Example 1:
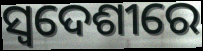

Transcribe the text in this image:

ସ୍ୱଦେଶୀରେ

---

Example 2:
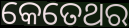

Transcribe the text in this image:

କେତେଥର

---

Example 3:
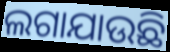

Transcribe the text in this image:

ଲଗାଯାଉଛି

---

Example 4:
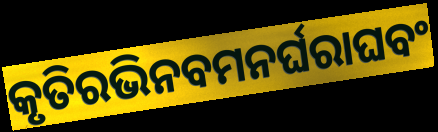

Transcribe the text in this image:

କୃତିରଭିନବମନର୍ଘରାଘବଂ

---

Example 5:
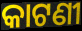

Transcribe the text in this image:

କାଟଣୀ